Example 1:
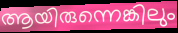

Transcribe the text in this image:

ആയിരുന്നെങ്കിലും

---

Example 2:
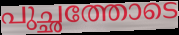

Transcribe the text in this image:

പുച്ഛത്തോടെ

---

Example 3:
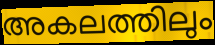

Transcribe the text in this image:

അകലത്തിലും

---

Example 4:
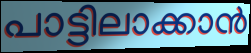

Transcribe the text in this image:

പാട്ടിലാക്കാൻ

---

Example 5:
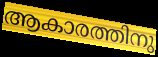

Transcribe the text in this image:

ആകാരത്തിനു